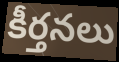
కీర్తనలు